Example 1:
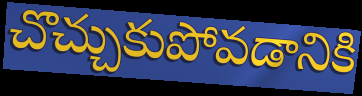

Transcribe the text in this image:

చొచ్చుకుపోవడానికి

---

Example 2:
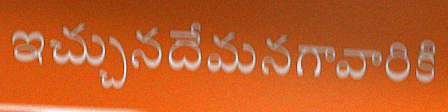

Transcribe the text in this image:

ఇచ్చునదేమనగావారికి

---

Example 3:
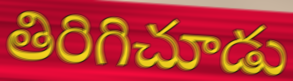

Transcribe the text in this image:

తిరిగిచూడు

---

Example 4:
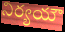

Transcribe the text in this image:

నిర్యయౌ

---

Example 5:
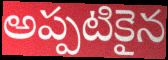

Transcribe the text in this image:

అప్పటికైన